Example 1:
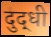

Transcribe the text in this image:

दुद्धी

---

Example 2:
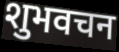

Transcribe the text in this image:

शुभवचन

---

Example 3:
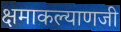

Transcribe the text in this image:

क्षमाकल्याणजी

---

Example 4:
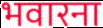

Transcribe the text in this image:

भवारना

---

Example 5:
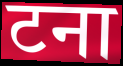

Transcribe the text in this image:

टना